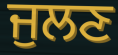
ਜੁਲਣ